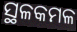
ସ୍ଥଳକମଳ